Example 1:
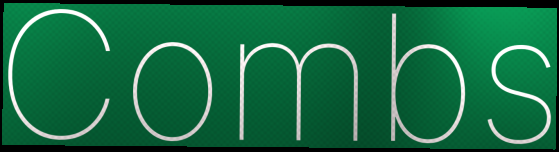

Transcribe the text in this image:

Combs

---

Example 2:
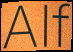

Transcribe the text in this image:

Alf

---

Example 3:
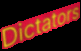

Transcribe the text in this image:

Dictators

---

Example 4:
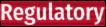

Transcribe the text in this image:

Regulatory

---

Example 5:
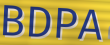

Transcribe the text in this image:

BDPA